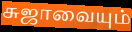
சுஜாவையும்